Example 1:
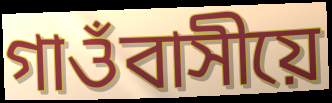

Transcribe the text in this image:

গাওঁবাসীয়ে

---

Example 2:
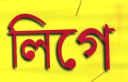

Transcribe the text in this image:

লিগে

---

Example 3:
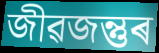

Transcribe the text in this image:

জীৱজন্তুৰ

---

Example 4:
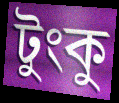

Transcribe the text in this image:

টুংকু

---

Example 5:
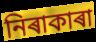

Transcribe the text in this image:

নিৰাকাৰা